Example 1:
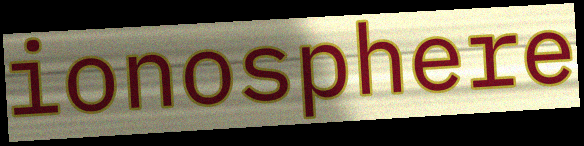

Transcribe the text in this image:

ionosphere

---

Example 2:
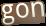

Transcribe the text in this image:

gon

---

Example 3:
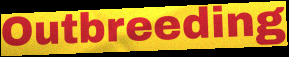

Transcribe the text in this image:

Outbreeding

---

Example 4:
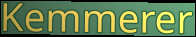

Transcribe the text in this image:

Kemmerer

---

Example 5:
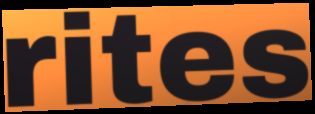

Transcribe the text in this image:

rites